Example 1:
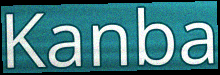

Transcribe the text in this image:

Kanba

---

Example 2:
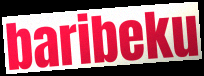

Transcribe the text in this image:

baribeku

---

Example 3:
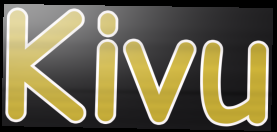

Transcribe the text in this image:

Kivu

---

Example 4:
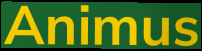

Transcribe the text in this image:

Animus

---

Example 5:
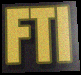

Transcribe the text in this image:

FTI